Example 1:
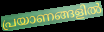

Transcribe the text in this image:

പ്രയാണങ്ങളിൽ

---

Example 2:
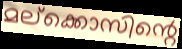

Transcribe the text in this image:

മല്ക്കൊസിന്റെ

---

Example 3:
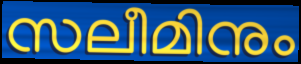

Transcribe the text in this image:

സലീമിനും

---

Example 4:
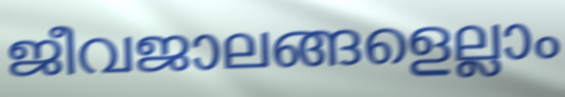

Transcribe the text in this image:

ജീവജാലങ്ങളെല്ലാം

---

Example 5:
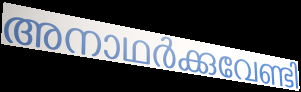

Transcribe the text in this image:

അനാഥർക്കുവേണ്ടി